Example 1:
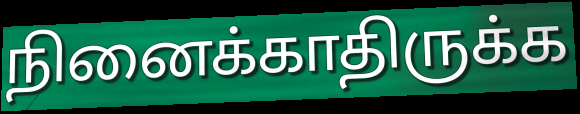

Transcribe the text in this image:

நினைக்காதிருக்க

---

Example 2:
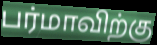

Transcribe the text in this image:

பர்மாவிற்கு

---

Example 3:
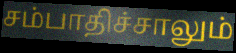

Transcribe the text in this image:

சம்பாதிச்சாலும்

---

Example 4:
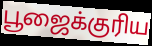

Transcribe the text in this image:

பூஜைக்குரிய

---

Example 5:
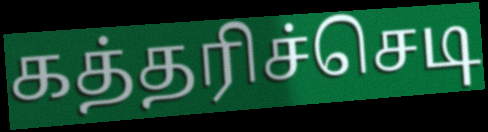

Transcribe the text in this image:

கத்தரிச்செடி